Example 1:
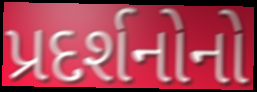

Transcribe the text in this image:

પ્રદર્શનોનો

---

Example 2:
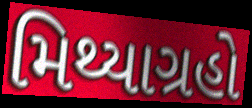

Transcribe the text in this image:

મિથ્યાગ્રહો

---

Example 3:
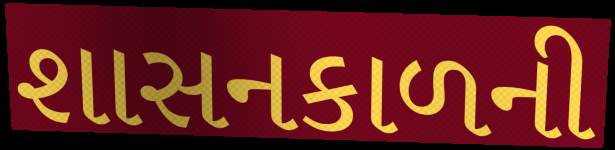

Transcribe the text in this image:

શાસનકાળની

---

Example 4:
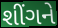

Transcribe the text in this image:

શીંગને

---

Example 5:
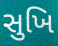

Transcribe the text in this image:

સુખિ